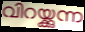
വിറയ്ക്കുന്ന